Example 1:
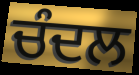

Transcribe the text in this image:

ਚੰਦਲ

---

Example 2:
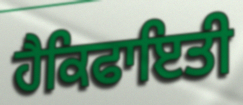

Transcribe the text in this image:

ਹੈਕਿਫਾਇਤੀ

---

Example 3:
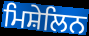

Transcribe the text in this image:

ਮਿਸ਼ੇਲਿਨ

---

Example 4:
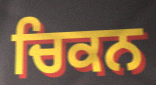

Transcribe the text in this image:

ਚਿਕਨ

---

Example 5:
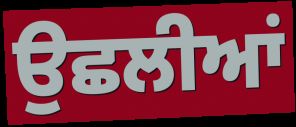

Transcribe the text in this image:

ਉਛਲੀਆਂ